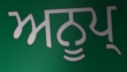
ਅਨੂਪ੍